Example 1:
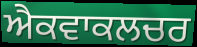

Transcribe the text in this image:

ਐਕਵਾਕਲਚਰ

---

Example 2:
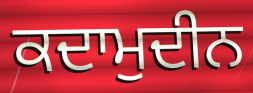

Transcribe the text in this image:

ਕਦਾਮੁਦੀਨ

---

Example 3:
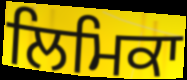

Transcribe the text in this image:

ਲਿਮਿਕਾ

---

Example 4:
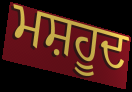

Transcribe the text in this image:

ਮਸ਼ਹੂਦ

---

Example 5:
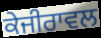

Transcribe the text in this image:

ਕੇਜੀਰਾਵਲ